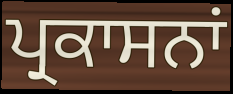
ਪ੍ਰਕਾਸਨਾਂ